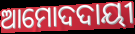
ଆମୋଦଦାୟୀ